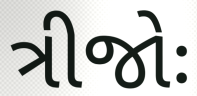
ત્રીજોઃ